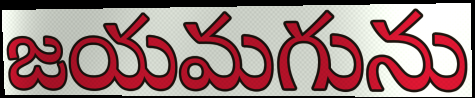
జయమగును